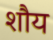
शौय